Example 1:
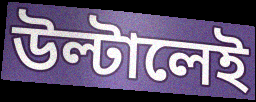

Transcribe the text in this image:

উল্টালেই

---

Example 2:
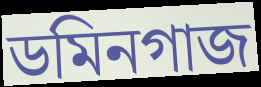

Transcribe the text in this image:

ডমিনগাজ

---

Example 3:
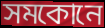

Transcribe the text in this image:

সমকোনে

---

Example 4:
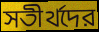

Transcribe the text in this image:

সতীর্থদের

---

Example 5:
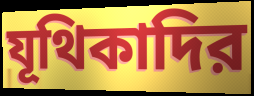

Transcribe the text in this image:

যূথিকাদির